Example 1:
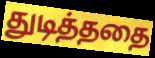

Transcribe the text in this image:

துடித்ததை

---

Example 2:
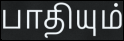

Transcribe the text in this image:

பாதியும்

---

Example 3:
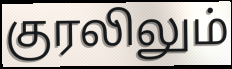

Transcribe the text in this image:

குரலிலும்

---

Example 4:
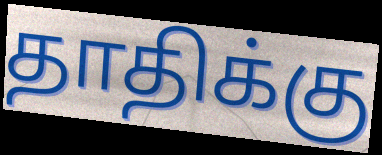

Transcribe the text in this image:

தாதிக்கு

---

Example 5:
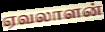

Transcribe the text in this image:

ஏவலாளன்